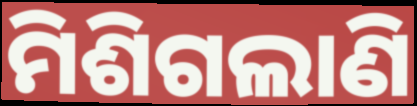
ମିଶିଗଲାଣି